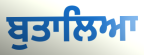
ਬੁਤਾਲਿਆ